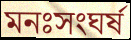
মনঃসংঘর্ষ